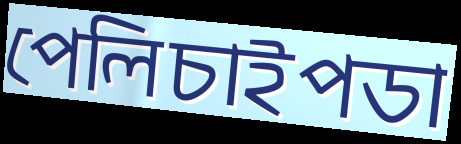
পেলিচাইপডা